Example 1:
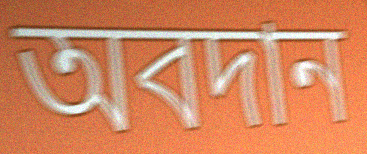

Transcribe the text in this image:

অবদান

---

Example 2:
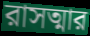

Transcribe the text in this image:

রাসত্মার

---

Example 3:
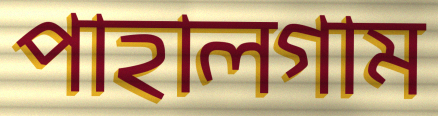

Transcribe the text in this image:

পাহালগাম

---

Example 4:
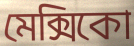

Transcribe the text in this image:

মেক্সিকো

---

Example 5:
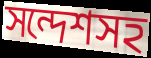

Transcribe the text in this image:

সন্দেশসহ